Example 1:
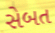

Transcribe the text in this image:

સેબત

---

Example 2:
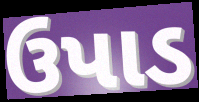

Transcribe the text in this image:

ઉપાડ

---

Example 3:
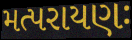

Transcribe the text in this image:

મત્પરાયણઃ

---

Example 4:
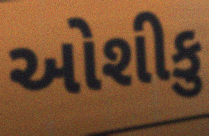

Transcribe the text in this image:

ઓશીકુ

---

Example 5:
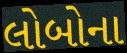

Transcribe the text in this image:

લોબોના